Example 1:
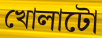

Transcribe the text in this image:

খোলাটো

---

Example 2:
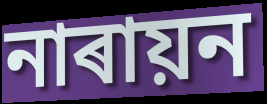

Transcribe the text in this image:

নাৰায়ন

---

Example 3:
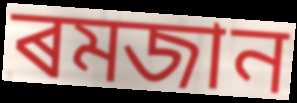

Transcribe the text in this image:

ৰমজান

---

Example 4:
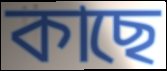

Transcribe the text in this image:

কাছে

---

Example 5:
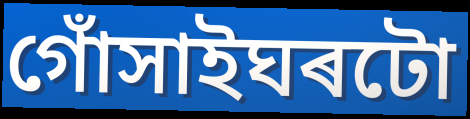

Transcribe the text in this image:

গোঁসাইঘৰটো